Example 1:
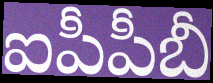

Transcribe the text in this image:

ఐపీపీబీ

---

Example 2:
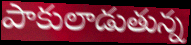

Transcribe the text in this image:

పాకులాడుతున్న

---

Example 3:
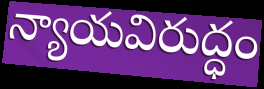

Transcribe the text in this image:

న్యాయవిరుద్ధం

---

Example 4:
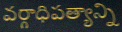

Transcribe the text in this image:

వర్గాధిపత్యాన్ని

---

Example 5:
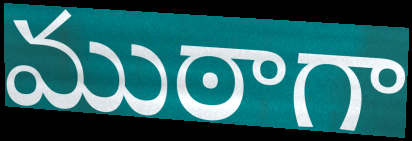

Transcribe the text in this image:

ముఠాగా